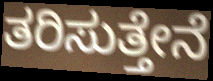
ತರಿಸುತ್ತೇನೆ